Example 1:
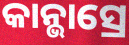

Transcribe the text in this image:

କାନ୍ଭାସ୍ରେ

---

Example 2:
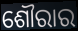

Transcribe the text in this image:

ଶୌରାର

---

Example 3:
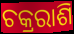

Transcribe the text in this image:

ଚକ୍ରରାଶି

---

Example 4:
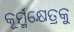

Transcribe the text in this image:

କୂର୍ମ୍ମକ୍ଷେତ୍ରକୁ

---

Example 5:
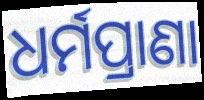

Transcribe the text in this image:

ଧର୍ମପ୍ରାଣା